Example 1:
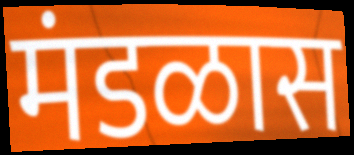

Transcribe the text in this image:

मंडळास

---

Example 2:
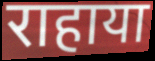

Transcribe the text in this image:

राहाया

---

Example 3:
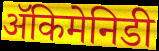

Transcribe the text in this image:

ॲकिमेनिडी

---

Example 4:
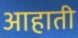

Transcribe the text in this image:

आहाती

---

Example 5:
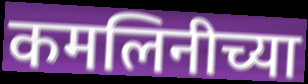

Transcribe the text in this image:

कमलिनीच्या